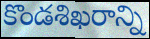
కొండశిఖరాన్ని